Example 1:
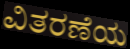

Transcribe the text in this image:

ವಿತರಣೆಯ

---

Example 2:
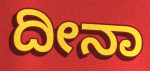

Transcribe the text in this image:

ದೀನಾ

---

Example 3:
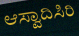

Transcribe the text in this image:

ಆಸ್ವಾದಿಸಿರಿ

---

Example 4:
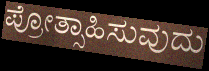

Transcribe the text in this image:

ಪ್ರೋತ್ಸಾಹಿಸುವುದು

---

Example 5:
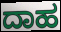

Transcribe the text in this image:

ದಾಹ